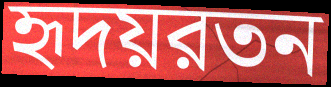
হৃদয়রতন